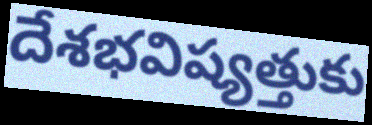
దేశభవిష్యత్తుకు